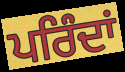
ਪਰਿੰਦਾਂ